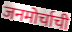
जनमोर्चाची